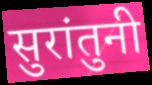
सुरांतुनी